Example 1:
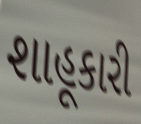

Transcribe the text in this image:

શાહૂકારી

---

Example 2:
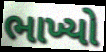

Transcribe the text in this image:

ભાખ્યો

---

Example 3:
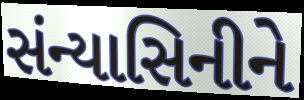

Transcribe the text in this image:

સંન્યાસિનીને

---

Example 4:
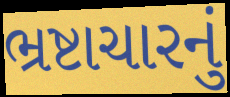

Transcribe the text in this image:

ભ્રષ્ટાચારનું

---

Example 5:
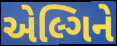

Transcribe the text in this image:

એલ્ગિને